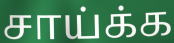
சாய்க்க